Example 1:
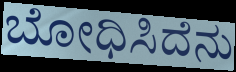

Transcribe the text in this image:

ಬೋಧಿಸಿದೆನು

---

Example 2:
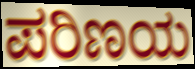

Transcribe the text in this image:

ಪರಿಣಯ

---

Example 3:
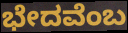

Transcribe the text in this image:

ಭೇದವೆಂಬ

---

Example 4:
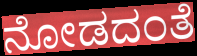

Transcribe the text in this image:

ನೋಡದಂತೆ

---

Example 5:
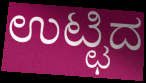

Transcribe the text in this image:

ಉಟ್ಟಿದ